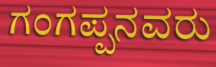
ಗಂಗಪ್ಪನವರು